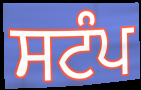
ਸਟੰਪ